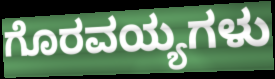
ಗೊರವಯ್ಯಗಳು